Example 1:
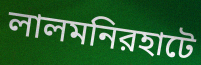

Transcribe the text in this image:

লালমনিরহাটে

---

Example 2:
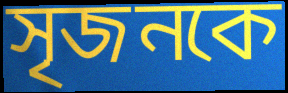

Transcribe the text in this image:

সৃজনকে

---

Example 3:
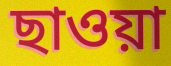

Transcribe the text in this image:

ছাওয়া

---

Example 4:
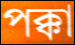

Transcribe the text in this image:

পক্কা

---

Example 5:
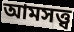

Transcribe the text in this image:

আমসত্ত্ব